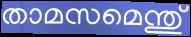
താമസമെന്തു്